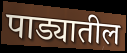
पाड्यातील